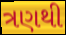
ત્રણથી